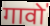
गावो॑